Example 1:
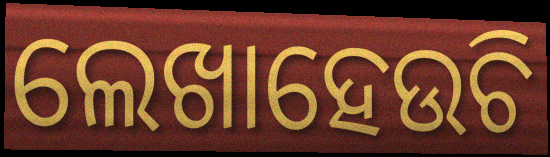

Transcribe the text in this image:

ଲେଖାହେଉଚି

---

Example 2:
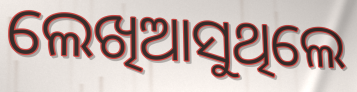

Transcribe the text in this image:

ଲେଖିଆସୁଥିଲେ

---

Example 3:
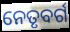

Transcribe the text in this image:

ନେତୃବର୍ଗ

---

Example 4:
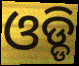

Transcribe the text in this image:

ଓଡ୍ଡି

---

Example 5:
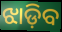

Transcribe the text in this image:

ଝାଡ଼ିବ